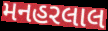
મનહરલાલ